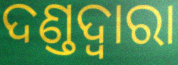
ଦଣ୍ଡଦ୍ୱାରା